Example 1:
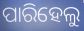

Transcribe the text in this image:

ପାରିହେଲୁ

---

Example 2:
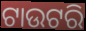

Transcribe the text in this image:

ଟାଉଟରି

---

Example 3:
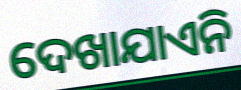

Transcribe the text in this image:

ଦେଖାଯାଏନି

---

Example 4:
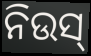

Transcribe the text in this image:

ନିଉସ୍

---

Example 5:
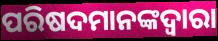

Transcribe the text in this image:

ପରିଷଦମାନଙ୍କଦ୍ୱାରା